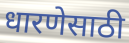
धारणेसाठी